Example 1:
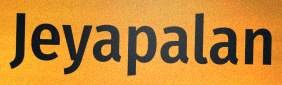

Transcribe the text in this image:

Jeyapalan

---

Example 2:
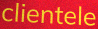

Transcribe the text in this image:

clientele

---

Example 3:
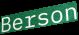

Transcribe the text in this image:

Berson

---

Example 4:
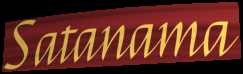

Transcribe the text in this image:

Satanama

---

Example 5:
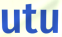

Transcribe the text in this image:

utu